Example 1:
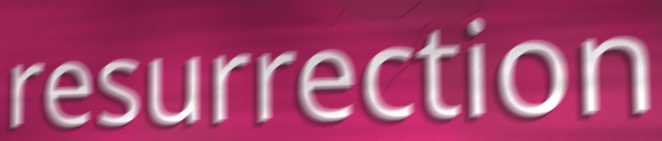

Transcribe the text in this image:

resurrection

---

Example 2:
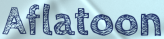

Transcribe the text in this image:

Aflatoon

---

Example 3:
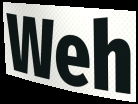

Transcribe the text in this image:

Weh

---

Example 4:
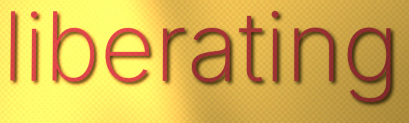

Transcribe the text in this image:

liberating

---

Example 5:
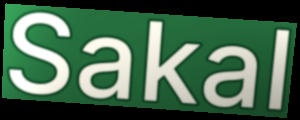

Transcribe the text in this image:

Sakal